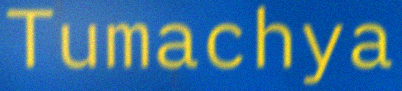
Tumachya